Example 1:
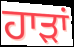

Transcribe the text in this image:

ਹਾੜਾਂ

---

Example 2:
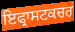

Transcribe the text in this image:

ਇਫ੍ਰਾਸਟਕਚਰ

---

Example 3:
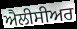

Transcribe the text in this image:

ਐਲੀਸੀਅਰ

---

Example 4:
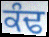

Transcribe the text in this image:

ਕੰਢ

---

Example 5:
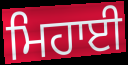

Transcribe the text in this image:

ਮਿਹਾਈ